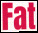
Fat